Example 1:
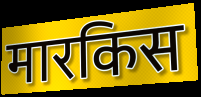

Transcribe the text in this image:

मारकिस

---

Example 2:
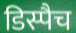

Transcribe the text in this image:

डिस्‍पैच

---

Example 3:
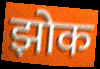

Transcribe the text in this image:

झोक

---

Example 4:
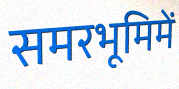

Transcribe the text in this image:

समरभूमिमें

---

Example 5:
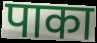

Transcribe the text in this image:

पाका